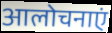
आलोचनाएं